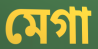
মেগা